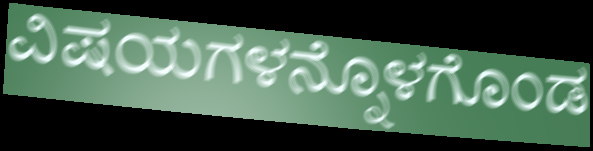
ವಿಷಯಗಳನ್ನೊಳಗೊಂಡ